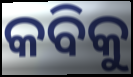
କବିକୁ